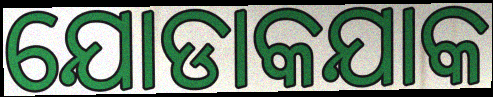
ଯୋଡାକଯାକ